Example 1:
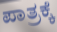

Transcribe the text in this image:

ಪಾತ್ರಕ್ಕೆ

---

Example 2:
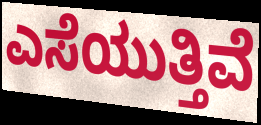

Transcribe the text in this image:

ಎಸೆಯುತ್ತಿವೆ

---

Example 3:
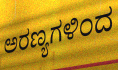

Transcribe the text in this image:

ಅರಣ್ಯಗಳಿಂದ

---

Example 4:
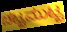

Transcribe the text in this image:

ಚಟ್ಟಮುಟ್ಟ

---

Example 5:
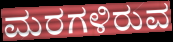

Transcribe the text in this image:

ಮರಗಳಿರುವ